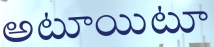
అటూయిటూ